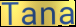
Tana